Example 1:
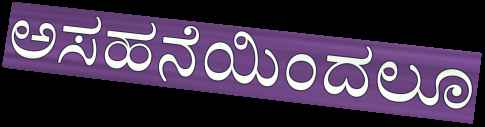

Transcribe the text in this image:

ಅಸಹನೆಯಿಂದಲೂ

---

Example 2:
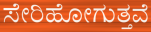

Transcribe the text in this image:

ಸೇರಿಹೋಗುತ್ತವೆ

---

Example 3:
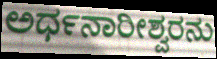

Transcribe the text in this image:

ಅರ್ಧನಾರೀಶ್ವರನು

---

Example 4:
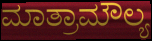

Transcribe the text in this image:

ಮಾತ್ರಾಮೌಲ್ಯ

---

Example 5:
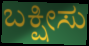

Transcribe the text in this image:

ಬಕ್ಷೀಸು